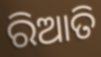
ରିଆତି